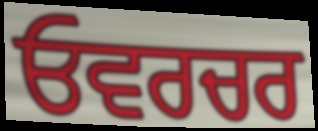
ਓਵਰਚਰ